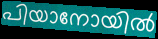
പിയാനോയിൽ